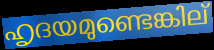
ഹൃദയമുണ്ടെങ്കില്